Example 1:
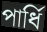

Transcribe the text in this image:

পাৰ্ধি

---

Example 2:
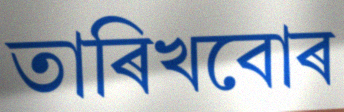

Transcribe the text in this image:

তাৰিখবোৰ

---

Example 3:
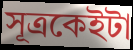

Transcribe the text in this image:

সূত্ৰকেইটা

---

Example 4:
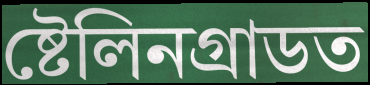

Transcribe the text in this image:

ষ্টেলিনগ্ৰাডত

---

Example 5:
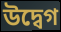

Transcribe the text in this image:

উদ্বেগ